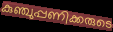
കുഞ്ചുപ്പണിക്കരുടെ